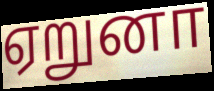
ஏறுனா